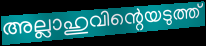
അല്ലാഹുവിന്റെയടുത്ത്